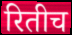
रितीच